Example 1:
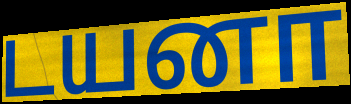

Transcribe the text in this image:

டயனா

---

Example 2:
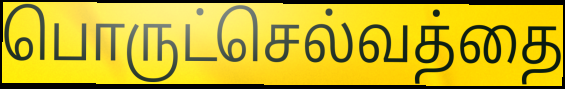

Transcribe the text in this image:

பொருட்செல்வத்தை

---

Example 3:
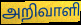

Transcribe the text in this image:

அறிவாளி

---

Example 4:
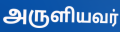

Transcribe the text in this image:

அருளியவர்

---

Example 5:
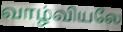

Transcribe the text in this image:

வாழ்வியலே